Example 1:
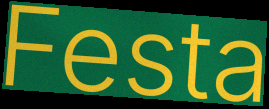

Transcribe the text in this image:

Festa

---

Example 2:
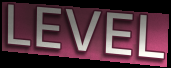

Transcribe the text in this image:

LEVEL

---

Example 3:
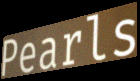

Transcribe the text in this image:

Pearls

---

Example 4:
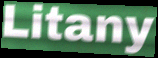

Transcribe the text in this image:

Litany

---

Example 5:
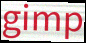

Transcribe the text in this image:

gimp